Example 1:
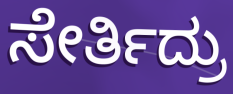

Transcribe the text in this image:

ಸೇರ್ತಿದ್ರು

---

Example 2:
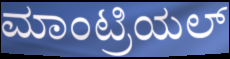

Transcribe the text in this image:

ಮಾಂಟ್ರಿಯಲ್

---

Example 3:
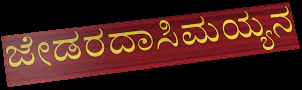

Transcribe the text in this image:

ಜೇಡರದಾಸಿಮಯ್ಯನ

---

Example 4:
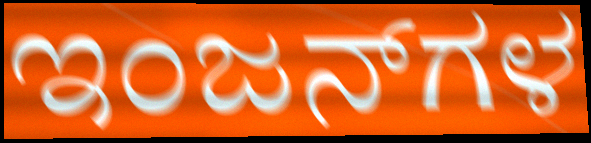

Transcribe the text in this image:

ಇಂಜನ್‌ಗಳ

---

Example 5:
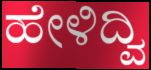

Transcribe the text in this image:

ಹೇಳಿದ್ವಿ